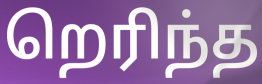
றெரிந்த